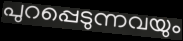
പുറപ്പെടുന്നവയും